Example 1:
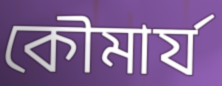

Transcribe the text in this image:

কৌমার্য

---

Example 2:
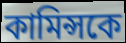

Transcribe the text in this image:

কামিন্সকে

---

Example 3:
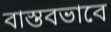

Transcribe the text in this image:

বাস্তবভাবে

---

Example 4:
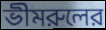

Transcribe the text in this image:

ভীমরুলের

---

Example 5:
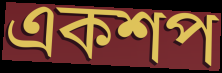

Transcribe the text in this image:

একশপ